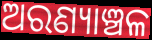
ଅରଣ୍ୟାଞ୍ଚଳ